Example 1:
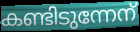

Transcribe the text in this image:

കണ്ടിടുന്നേന്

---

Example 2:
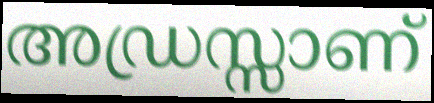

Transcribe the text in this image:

അഡ്രസ്സാണ്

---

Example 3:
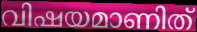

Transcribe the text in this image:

വിഷയമാണിത്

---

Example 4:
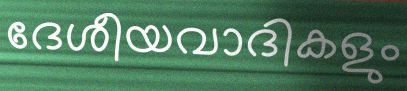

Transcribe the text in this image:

ദേശീയവാദികളും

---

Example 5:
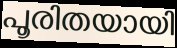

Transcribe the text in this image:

പൂരിതയായി